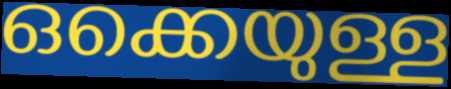
ഒക്കെയുള്ള